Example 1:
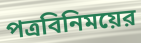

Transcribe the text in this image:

পত্রবিনিময়ের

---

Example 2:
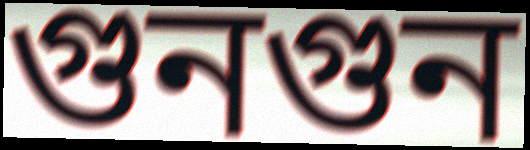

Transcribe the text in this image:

গুনগুন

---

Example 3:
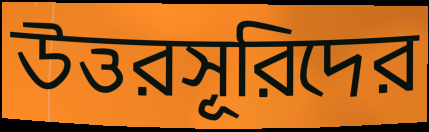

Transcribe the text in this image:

উত্তরসূরিদের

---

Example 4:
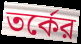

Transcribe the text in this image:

তর্কের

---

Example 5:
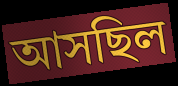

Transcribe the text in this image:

আসছিল